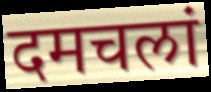
दमचलां